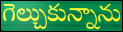
గెల్చుకున్నాను